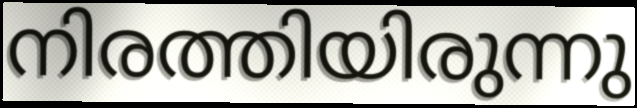
നിരത്തിയിരുന്നു